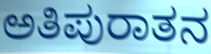
ಅತಿಪುರಾತನ